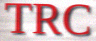
TRC